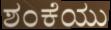
ಶಂಕೆಯು